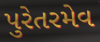
પુરેતરમેવ